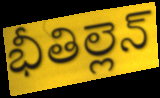
భీతిల్లెన్